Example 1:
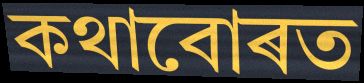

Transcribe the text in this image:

কথাবোৰত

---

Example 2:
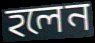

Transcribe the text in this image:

হলেন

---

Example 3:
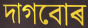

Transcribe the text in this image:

দাগবোৰ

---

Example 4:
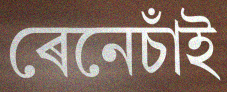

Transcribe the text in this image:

ৰেনেচাঁই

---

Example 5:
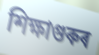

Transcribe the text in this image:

শিক্ষাগুৰুৰ